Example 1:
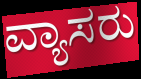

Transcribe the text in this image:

ವ್ಯಾಸರು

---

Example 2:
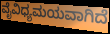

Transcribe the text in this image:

ವೈವಿಧ್ಯಮಯವಾಗಿದೆ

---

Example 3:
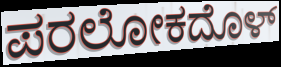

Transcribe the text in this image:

ಪರಲೋಕದೊಳ್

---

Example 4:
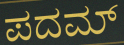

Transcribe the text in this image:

ಪದಮ್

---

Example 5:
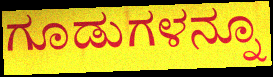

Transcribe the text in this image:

ಗೂಡುಗಳನ್ನೂ